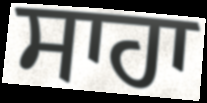
ਸਾਹਾ